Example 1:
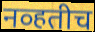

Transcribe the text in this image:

नव्हतीच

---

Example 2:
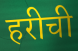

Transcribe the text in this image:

हरीची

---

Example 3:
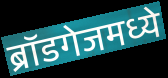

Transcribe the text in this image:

ब्रॉडगेजमध्ये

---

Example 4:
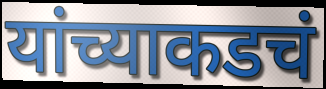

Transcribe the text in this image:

यांच्याकडचं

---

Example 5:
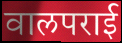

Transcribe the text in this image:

वालपराई